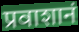
प्रवाशानं